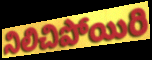
నిలిచిపోయిరి